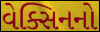
વેક્સિનનો